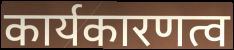
कार्यकारणत्व